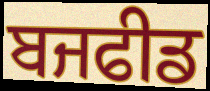
ਬਜਫੀਡ